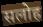
सलोह